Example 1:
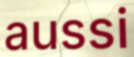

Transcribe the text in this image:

aussi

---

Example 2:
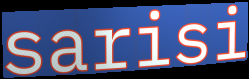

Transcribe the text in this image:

sarisi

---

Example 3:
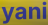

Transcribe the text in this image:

yani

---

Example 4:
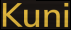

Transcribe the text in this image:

Kuni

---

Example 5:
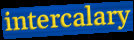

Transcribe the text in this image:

intercalary